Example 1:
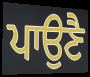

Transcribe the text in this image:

ਪਾਉਣੈ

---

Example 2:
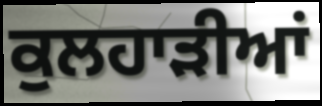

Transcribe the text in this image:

ਕੁਲਹਾੜੀਆਂ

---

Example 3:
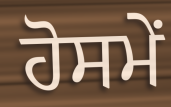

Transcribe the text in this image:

ਹੋਸਮੇਂ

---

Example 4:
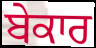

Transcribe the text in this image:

ਬੇਕਾਰ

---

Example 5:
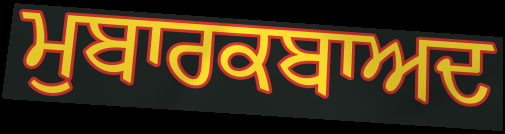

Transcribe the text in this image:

ਮੁਬਾਰਕਬਾਅਦ